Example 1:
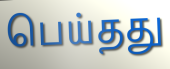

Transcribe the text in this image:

பெய்தது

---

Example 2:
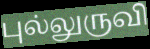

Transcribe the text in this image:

புல்லுருவி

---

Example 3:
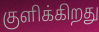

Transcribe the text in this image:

குளிக்கிறது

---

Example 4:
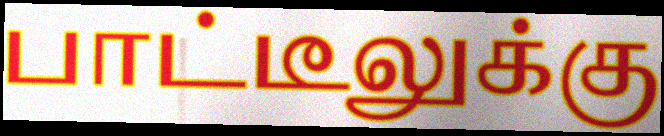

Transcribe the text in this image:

பாட்டீலுக்கு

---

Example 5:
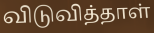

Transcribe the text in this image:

விடுவித்தாள்